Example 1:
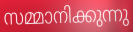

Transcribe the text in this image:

സമ്മാനിക്കുന്നു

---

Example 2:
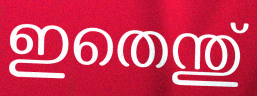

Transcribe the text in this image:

ഇതെന്തു്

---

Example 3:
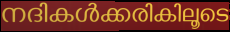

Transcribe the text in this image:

നദികൾക്കരികിലൂടെ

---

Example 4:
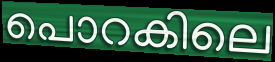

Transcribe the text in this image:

പൊറകിലെ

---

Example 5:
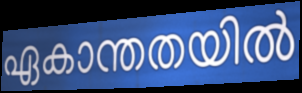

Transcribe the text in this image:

ഏകാന്തതയിൽ